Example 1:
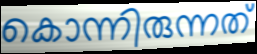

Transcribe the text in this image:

കൊന്നിരുന്നത്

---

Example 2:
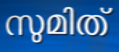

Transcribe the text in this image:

സുമിത്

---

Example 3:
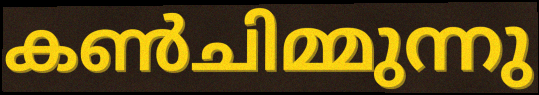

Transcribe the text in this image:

കൺചിമ്മുന്നു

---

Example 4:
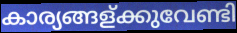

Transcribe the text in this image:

കാര്യങ്ങള്ക്കുവേണ്ടി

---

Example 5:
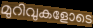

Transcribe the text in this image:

മുറിവുകളോടെ